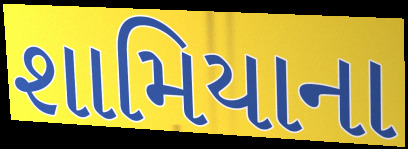
શામિયાના